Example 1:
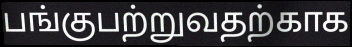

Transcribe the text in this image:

பங்குபற்றுவதற்காக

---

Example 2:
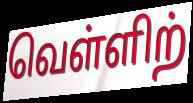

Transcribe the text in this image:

வெள்ளிற்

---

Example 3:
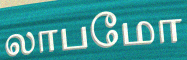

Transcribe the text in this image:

லாபமோ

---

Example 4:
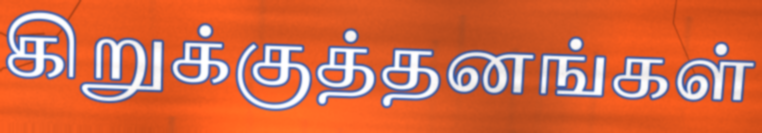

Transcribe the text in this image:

கிறுக்குத்தனங்கள்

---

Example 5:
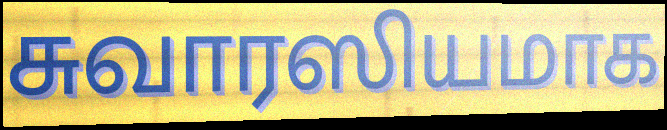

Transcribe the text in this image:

சுவாரஸியமாக